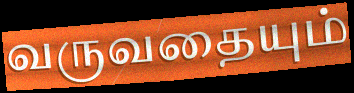
வருவதையும்